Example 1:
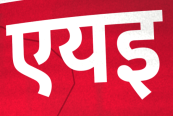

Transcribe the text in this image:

एयइ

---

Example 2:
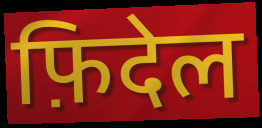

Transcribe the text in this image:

फ़िदेल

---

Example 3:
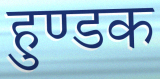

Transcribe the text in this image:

हुण्डक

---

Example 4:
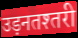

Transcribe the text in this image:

उड़नतश्तरी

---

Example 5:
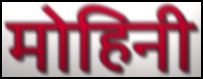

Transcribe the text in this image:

मोहिनी